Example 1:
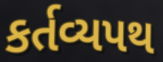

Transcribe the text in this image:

કર્તવ્યપથ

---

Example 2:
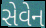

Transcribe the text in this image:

સેવેન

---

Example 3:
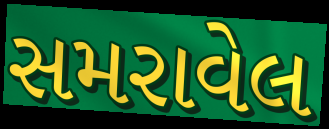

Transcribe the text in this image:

સમરાવેલ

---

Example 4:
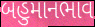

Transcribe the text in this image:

બહુમાનભાવ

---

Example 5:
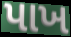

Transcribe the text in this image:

પાખ